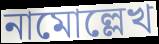
নামোল্লেখ